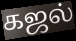
கஜல்